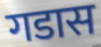
गडास